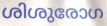
ശിശുരോഗ